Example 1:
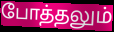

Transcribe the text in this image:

போத்தலும்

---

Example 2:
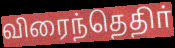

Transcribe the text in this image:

விரைந்தெதிர்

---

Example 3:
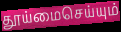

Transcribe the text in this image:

தூய்மைசெய்யும்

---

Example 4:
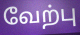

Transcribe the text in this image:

வேற்பு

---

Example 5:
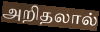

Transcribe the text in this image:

அறிதலால்